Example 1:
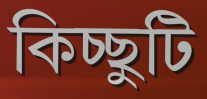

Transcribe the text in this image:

কিচ্ছুটি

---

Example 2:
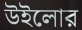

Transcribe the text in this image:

উইলোর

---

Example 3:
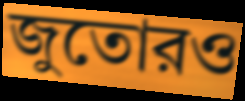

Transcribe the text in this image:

জুতোরও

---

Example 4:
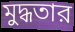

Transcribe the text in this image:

মুদ্ধতার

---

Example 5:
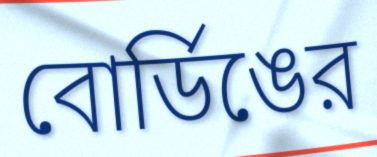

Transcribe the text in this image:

বোর্ডিঙের